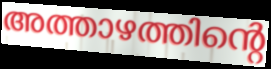
അത്താഴത്തിന്റെ